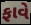
ફાવે